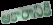
ఆకారానికి